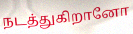
நடத்துகிறானோ